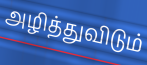
அழித்துவிடும்